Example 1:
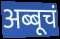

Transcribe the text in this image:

अब्बूचं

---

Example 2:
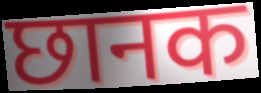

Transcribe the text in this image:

छानक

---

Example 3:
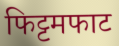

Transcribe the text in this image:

फिट्टमफाट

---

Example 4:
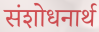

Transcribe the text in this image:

संशोधनार्थ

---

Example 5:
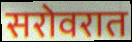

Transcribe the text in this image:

सरोवरात